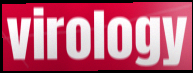
virology